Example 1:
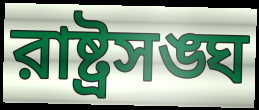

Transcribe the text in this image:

রাষ্ট্রসঙ্ঘ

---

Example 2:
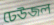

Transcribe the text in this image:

ঢেউজল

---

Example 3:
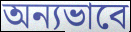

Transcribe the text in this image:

অন্যভাবে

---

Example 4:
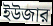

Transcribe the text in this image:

ইউজার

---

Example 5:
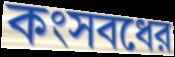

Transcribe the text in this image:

কংসবধের